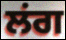
ਲਂਗ